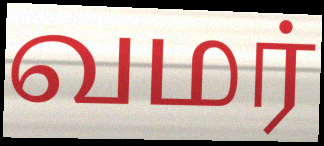
வமர்